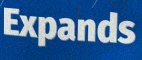
Expands